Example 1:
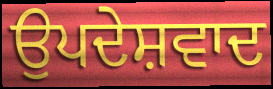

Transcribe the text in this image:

ਉਪਦੇਸ਼ਵਾਦ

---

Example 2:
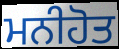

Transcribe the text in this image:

ਮਨੀਹੋਤ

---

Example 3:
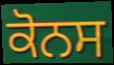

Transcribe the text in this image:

ਕੋਨਸ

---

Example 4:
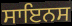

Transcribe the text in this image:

ਸਾਇਨਸ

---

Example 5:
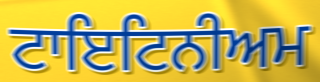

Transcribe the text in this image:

ਟਾਇਟਿਨੀਅਮ